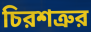
চিরশত্রুর